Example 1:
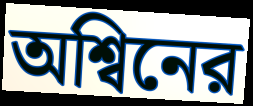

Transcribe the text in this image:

অশ্বিনের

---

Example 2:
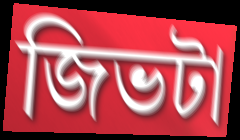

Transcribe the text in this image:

জিভটা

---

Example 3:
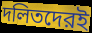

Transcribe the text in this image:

দলিতদেরই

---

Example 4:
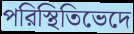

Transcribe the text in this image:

পরিস্থিতিভেদে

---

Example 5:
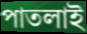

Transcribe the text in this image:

পাতলাই